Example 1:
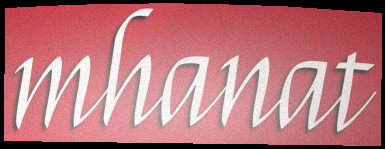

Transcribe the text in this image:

mhanat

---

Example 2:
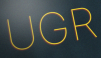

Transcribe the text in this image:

UGR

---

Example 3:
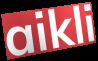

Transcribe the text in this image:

aikli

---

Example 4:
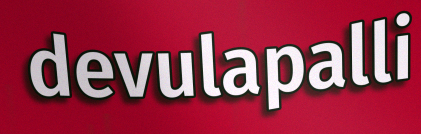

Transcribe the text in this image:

devulapalli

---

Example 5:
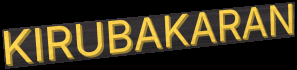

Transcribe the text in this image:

KIRUBAKARAN